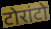
टोरांटो